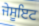
ਜੇਸੂਇਟ